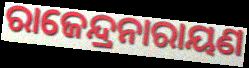
ରାଜେନ୍ଦ୍ରନାରାୟଣ